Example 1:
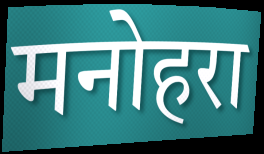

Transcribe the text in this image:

मनोहरा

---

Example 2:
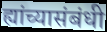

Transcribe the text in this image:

ह्यांच्यासंबंधी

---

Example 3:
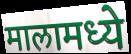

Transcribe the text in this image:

मालामध्ये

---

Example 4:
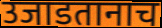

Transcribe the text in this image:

उजाडतानाच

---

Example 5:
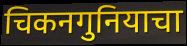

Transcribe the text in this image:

चिकनगुनियाचा